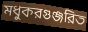
মধুকরগুঞ্জরিত